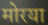
मोरया